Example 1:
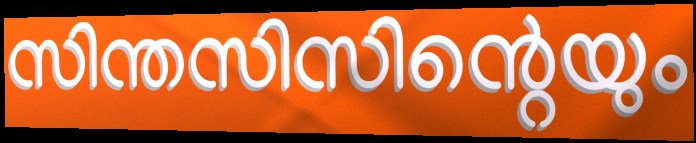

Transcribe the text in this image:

സിന്തസിസിന്റെയും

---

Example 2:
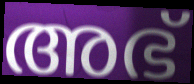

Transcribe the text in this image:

അഭ്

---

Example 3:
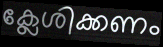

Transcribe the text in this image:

ക്ലേശിക്കണം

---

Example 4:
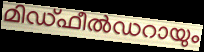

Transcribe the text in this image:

മിഡ്ഫീൽഡറായും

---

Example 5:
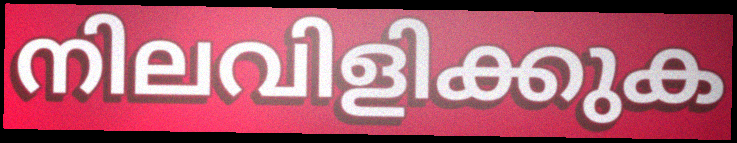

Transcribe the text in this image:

നിലവിളിക്കുക